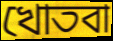
খোতবা